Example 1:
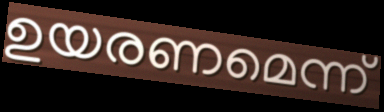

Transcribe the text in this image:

ഉയരണമെന്ന്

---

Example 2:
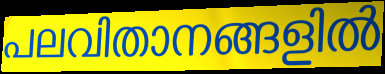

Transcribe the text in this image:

പലവിതാനങ്ങളിൽ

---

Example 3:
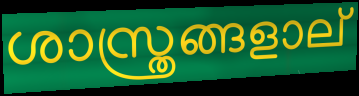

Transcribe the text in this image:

ശാസ്ത്രങ്ങളാല്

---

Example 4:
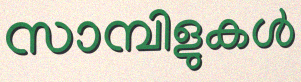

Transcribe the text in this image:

സാമ്പിളുകൾ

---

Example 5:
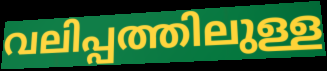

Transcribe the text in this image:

വലിപ്പത്തിലുള്ള